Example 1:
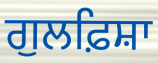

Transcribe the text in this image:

ਗੁਲਫ਼ਿਸ਼ਾ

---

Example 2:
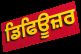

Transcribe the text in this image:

ਡਿਫਿਊਜ਼ਰ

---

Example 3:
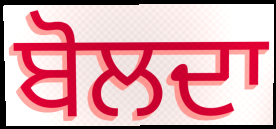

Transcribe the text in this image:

ਬੋਲਦਾ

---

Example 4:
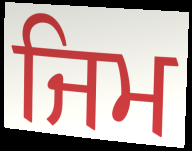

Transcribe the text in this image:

ਜਿਮ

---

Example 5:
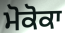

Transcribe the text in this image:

ਮੋਕੋਕਾ